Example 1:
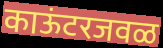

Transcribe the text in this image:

काऊंटरजवळ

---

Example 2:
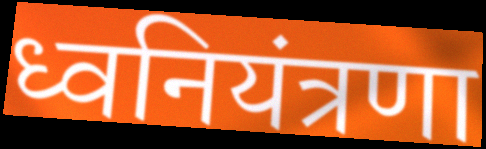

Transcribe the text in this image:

ध्वनियंत्रणा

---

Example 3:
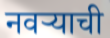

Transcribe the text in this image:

नवऱ्याची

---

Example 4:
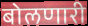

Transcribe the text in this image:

बोलणारी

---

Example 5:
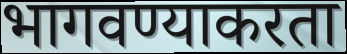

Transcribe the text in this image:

भागवण्याकरता